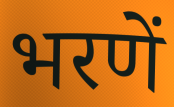
भरणें